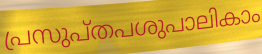
പ്രസുപ്തപശുപാലികാം